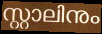
സ്റ്റാലിനും